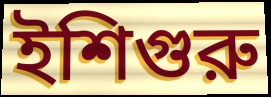
ইশিগুরু